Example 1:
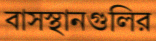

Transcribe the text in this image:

বাসস্থানগুলির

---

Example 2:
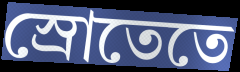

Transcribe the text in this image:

স্রোতেতে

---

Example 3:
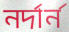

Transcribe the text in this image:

নর্দার্ন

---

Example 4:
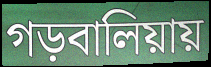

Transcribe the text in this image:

গড়বালিয়ায়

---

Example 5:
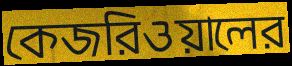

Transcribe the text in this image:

কেজরিওয়ালের